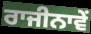
ਰਾਜੀਨਾਵੇਂ